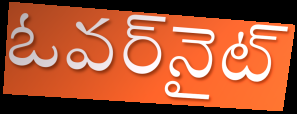
ఓవర్‌నైట్